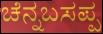
ಚೆನ್ನಬಸಪ್ಪ